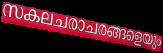
സകലചരാചരങ്ങളെയും